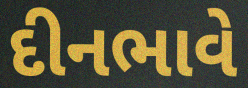
દીનભાવે